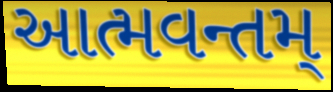
આત્મવન્તમ્